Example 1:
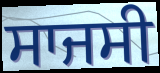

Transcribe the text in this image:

ਸਾਜਸੀ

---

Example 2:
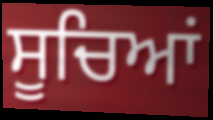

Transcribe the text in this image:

ਸੂਚਿਆਂ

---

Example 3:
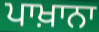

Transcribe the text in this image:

ਪਾਖ਼ਾਨਾ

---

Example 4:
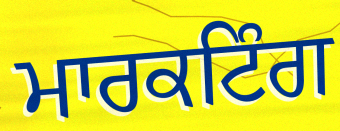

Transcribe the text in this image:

ਮਾਰਕਟਿੰਗ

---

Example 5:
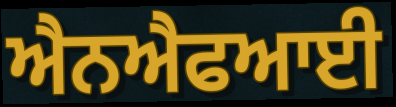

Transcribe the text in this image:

ਐਨਐਫਆਈ